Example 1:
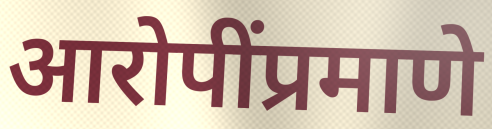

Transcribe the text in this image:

आरोपींप्रमाणे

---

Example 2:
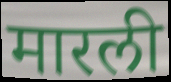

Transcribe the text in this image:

मारली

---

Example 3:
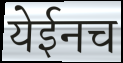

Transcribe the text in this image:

येईनच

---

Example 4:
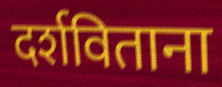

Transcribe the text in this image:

दर्शविताना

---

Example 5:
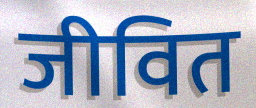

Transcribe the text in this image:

जीवित